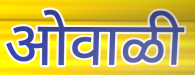
ओवाळी